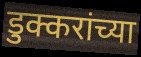
डुक्करांच्या